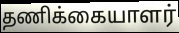
தணிக்கையாளர்